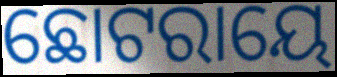
ଛୋଟରାୟେ